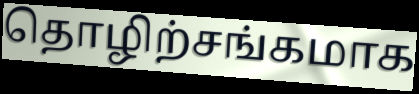
தொழிற்சங்கமாக